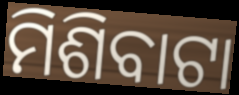
ମିଶିବାଟା